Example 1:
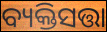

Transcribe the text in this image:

ବ୍ୟକ୍ତିସତ୍ତା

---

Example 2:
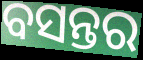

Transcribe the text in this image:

ବସନ୍ତର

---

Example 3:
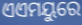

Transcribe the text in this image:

ଏଏମୟୁରେ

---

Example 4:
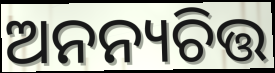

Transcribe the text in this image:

ଅନନ୍ୟଚିତ୍ତ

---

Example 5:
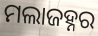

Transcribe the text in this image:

ମଲାଜହ୍ନର